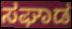
ಸಘಾಡ